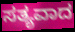
ಸತ್ಯವಾದ